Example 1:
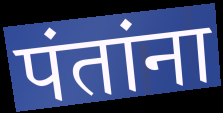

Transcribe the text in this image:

पंतांना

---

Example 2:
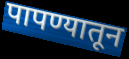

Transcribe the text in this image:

पापण्यातून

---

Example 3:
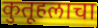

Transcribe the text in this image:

कुतूहलाचा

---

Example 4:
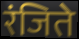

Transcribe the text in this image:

रंजिते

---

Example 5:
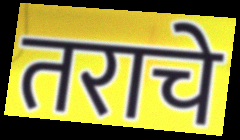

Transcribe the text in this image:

तराचे